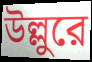
উল্লুরে